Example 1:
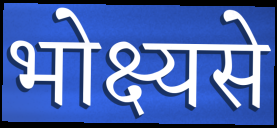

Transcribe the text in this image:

भोक्ष्यसे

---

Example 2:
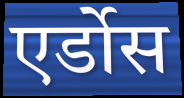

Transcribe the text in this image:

एर्डोस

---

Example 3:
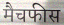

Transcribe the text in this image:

मैचफीस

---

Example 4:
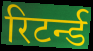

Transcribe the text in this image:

रिटर्न्ड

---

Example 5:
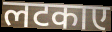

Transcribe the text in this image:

लटकाए